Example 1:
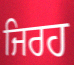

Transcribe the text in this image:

ਜਿਰਹ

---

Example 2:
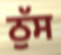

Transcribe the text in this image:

ਠੁੱਸ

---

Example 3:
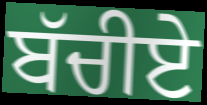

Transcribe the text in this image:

ਬੱਚੀਏ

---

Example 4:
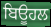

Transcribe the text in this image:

ਬਿਊਹਲ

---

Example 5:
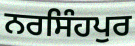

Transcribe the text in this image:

ਨਰਸਿੰਹਪੁਰ